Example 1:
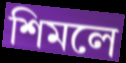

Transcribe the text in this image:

শিমলে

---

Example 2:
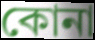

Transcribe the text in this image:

কোনা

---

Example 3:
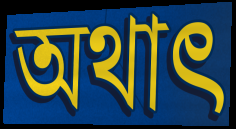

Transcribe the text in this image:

অথাৎ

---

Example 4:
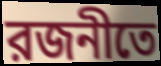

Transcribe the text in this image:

রজনীতে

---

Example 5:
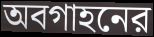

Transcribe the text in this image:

অবগাহনের